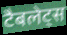
टैबलेट्स